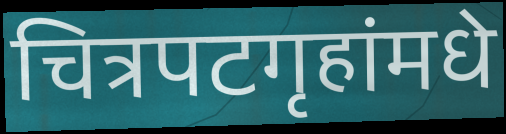
चित्रपटगृहांमधे